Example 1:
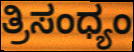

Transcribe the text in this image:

ತ್ರಿಸಂಧ್ಯಂ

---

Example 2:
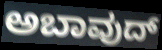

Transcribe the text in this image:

ಅಬಾವುದ್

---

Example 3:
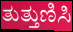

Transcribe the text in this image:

ತುತ್ತುಣಿಸಿ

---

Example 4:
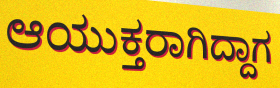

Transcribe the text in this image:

ಆಯುಕ್ತರಾಗಿದ್ದಾಗ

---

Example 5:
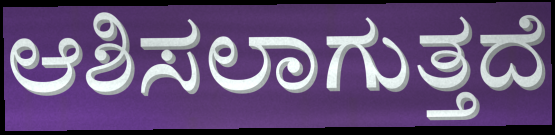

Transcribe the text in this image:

ಆಶಿಸಲಾಗುತ್ತದೆ